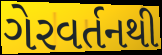
ગેરવર્તનથી